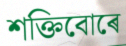
শক্তিবোৰে